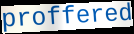
proffered